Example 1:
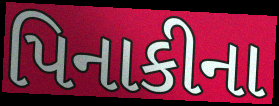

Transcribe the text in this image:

પિનાકીના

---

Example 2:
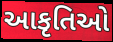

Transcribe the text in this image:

આકૃતિઓ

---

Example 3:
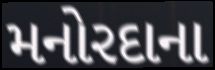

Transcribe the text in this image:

મનોરદાના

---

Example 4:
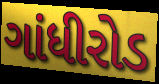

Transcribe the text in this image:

ગાંધીરોડ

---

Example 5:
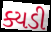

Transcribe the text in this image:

ક્યડી